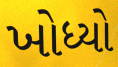
ખોધ્યો